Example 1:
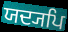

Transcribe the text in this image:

ਯਦ੍ਯਪਿ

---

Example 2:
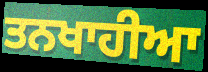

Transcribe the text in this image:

ਤਨਖਾਹੀਆ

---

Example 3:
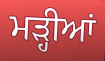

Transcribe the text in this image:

ਮੜ੍ਹੀਆਂ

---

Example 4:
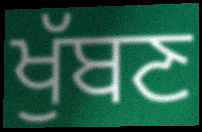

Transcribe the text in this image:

ਖੁੱਬਣ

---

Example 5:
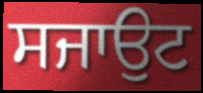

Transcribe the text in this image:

ਸਜਾਉਟ